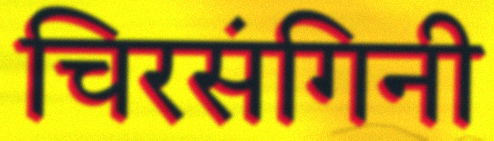
चिरसंगिनी